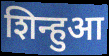
शिन्हुआ